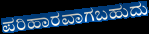
ಪರಿಹಾರವಾಗಬಹುದು